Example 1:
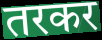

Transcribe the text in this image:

तरकर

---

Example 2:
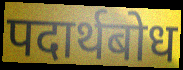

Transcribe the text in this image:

पदार्थबोध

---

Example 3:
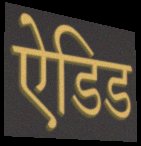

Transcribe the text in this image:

ऐडिड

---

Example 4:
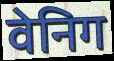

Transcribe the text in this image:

वेनिग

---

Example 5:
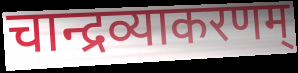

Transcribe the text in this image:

चान्द्रव्याकरणम्